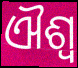
ଐଶ୍ୱ